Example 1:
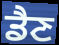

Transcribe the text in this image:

ਡੈਣ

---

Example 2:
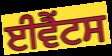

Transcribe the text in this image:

ਈਵੈਂਟਸ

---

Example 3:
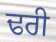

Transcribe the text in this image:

ਢਰੀ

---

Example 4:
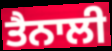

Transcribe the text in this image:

ਤੈਨਾਲੀ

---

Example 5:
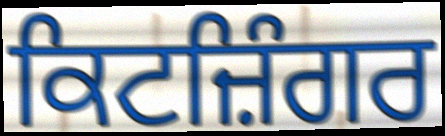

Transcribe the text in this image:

ਕਿਟਜ਼ਿੰਗਰ